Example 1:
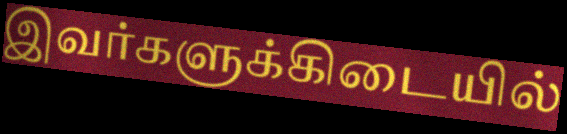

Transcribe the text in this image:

இவர்களுக்கிடையில்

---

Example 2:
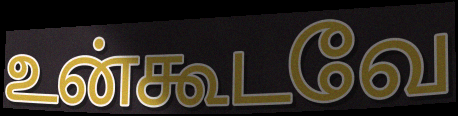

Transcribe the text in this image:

உன்கூடவே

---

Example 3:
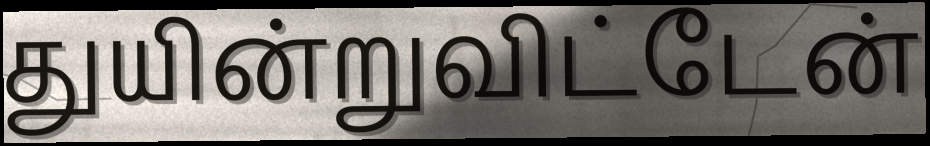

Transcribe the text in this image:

துயின்றுவிட்டேன்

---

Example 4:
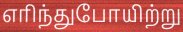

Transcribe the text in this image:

எரிந்துபோயிற்று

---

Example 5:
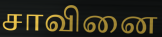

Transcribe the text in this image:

சாவினை